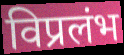
विप्रलंभ